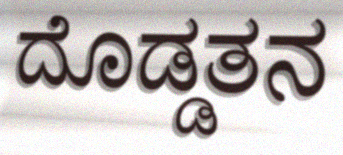
ದೊಡ್ಡತನ